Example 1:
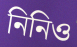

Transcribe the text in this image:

নিনিও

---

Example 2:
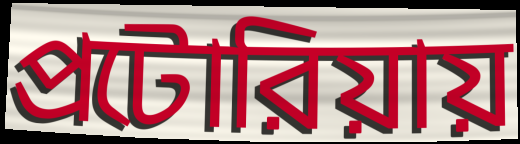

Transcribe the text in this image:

প্রটোরিয়ায়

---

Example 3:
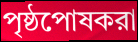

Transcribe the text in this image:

পৃষ্ঠপোষকরা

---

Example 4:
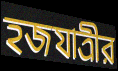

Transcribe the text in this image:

হজযাত্রীর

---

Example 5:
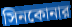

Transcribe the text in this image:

সিনকোনার